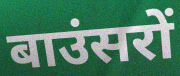
बाउंसरों